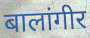
बालांगीर